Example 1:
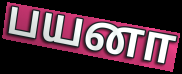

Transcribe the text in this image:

பயனா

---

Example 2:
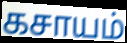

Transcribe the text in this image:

கசாயம்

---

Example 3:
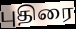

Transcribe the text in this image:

புதிரை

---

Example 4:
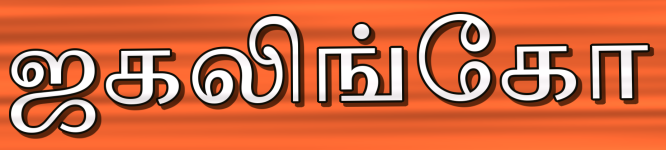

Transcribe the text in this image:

ஜகலிங்கோ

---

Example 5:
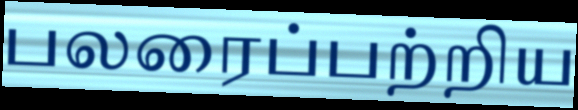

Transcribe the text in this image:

பலரைப்பற்றிய